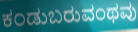
ಕಂಡುಬರುವಂಥವು